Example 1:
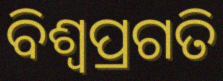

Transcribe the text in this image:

ବିଶ୍ବପ୍ରଗତି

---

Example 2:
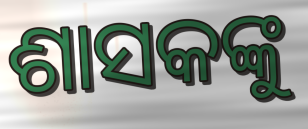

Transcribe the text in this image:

ଶାସକଙ୍କୁ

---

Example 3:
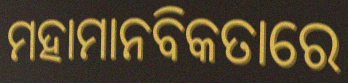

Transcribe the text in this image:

ମହାମାନବିକତାରେ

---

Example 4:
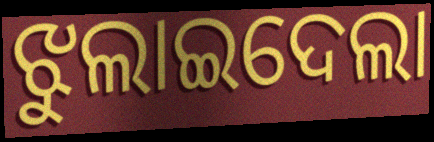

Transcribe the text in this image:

ଝୁଲାଇଦେଲା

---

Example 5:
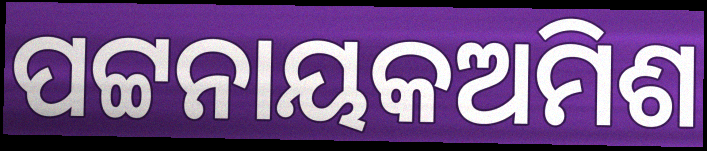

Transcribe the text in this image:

ପଟ୍ଟନାୟକଅମିଶ